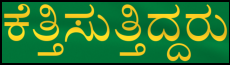
ಕೆತ್ತಿಸುತ್ತಿದ್ದರು